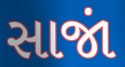
સાજાં